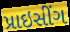
પ્રાઇસીંગ